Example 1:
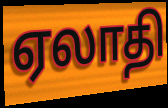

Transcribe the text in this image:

ஏலாதி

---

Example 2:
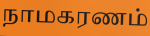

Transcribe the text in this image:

நாமகரணம்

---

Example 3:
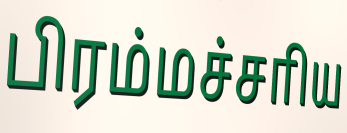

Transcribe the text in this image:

பிரம்மச்சரிய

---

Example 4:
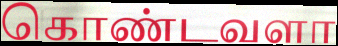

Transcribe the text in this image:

கொண்டவளா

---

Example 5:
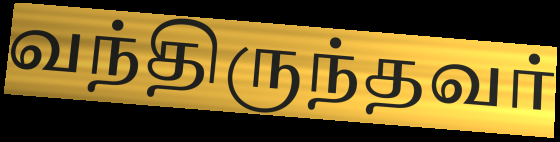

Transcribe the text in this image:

வந்திருந்தவர்